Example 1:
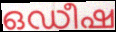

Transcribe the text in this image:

ഒഡീഷ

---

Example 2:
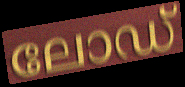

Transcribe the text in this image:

ലോഡ്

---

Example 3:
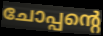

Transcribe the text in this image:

ചോപ്പന്റെ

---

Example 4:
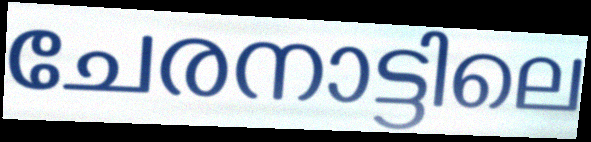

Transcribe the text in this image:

ചേരനാട്ടിലെ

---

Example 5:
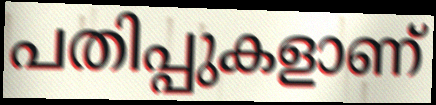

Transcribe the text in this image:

പതിപ്പുകളാണ്